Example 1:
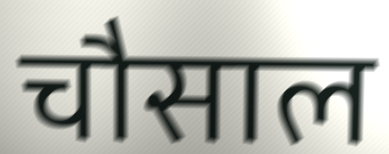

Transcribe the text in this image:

चौसाल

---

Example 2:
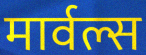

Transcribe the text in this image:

मार्वल्स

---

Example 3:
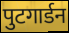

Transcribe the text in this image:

पुटगार्डन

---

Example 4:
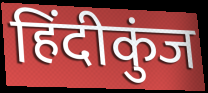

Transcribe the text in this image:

हिंदीकुंज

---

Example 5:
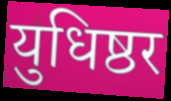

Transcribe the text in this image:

युधिष्ठर